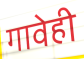
गावेही